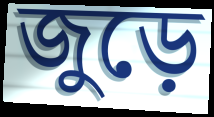
জুড়ে